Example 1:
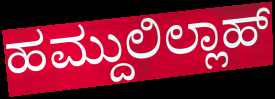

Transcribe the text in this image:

ಹಮ್ದುಲಿಲ್ಲಾಹ್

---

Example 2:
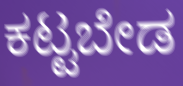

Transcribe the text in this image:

ಕಟ್ಟಬೇಡ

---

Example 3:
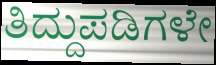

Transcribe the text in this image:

ತಿದ್ದುಪಡಿಗಳೇ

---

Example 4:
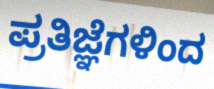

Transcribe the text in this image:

ಪ್ರತಿಜ್ಞೆಗಳಿಂದ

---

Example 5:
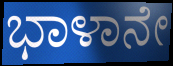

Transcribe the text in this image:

ಭಾಳಾನೇ